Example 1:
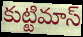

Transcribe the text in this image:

కుట్టిమాస్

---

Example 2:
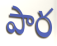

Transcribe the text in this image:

పార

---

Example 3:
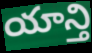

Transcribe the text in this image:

యాన్తి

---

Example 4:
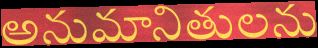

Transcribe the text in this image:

అనుమానితులను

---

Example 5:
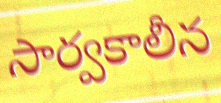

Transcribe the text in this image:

సార్వకాలీన